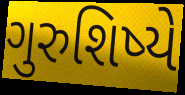
ગુરુશિષ્યે